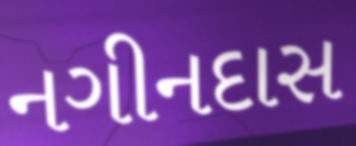
નગીનદાસ